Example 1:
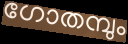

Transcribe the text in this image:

ഗോതമ്പും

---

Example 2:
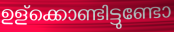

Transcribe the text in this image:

ഉള്ക്കൊണ്ടിട്ടുണ്ടോ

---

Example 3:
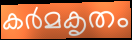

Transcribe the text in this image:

കർമകൃതം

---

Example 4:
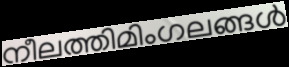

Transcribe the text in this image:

നീലത്തിമിംഗലങ്ങൾ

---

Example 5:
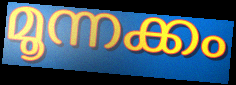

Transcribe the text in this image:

മൂന്നക്കം